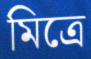
মিত্রে